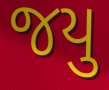
જયુ